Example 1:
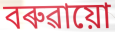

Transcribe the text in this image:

বৰুৱায়ো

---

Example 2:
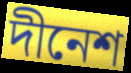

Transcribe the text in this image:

দীনেশ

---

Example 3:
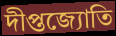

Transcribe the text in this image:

দীপ্তজ্যোতি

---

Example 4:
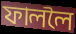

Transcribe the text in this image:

ফাললৈ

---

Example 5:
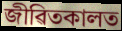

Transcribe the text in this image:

জীৱিতকালত